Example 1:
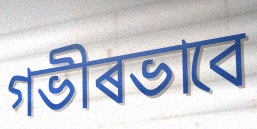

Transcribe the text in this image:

গভীৰভাবে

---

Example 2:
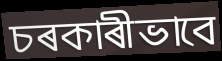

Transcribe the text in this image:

চৰকাৰীভাবে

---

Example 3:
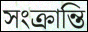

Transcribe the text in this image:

সংক্ৰান্তি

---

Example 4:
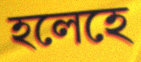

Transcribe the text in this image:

হলেহে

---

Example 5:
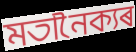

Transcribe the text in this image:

মতানৈক্যৰ